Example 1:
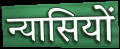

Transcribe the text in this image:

न्यासियों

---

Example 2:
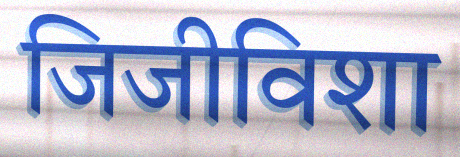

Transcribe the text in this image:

जिजीविशा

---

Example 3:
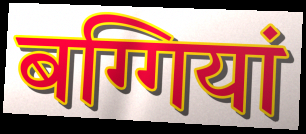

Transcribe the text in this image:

बग्गियां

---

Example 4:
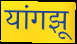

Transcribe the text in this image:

यांगझू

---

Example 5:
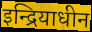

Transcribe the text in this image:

इन्द्रियाधीन